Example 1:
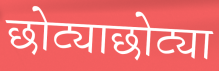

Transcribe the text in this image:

छोट्याछोट्या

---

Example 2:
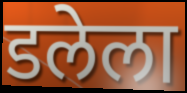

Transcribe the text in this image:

डलेला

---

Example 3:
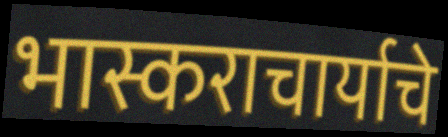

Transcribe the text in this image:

भास्कराचार्याचे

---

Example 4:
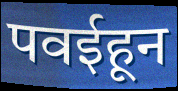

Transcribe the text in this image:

पवईहून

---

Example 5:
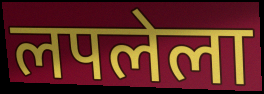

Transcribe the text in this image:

लपलेला